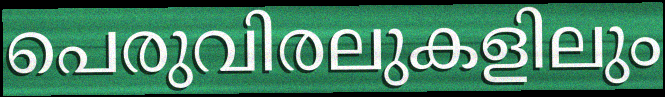
പെരുവിരലുകളിലും